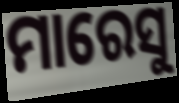
ମାରେସୁ